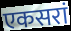
एकसरां